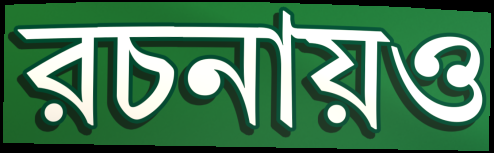
রচনায়ও